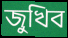
জুখিব